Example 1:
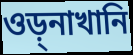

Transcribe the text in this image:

ওড়্নাখানি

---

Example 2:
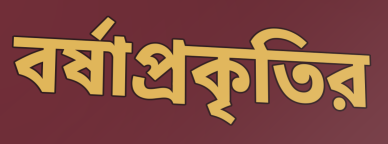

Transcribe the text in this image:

বর্ষাপ্রকৃতির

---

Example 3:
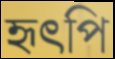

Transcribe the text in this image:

হৃৎপি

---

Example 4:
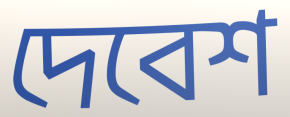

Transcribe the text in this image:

দেবেশ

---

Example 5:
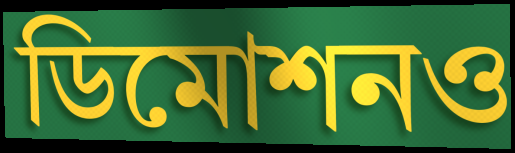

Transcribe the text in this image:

ডিমোশনও